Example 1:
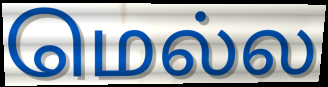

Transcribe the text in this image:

மெல்ல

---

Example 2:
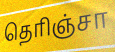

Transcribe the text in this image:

தெரிஞ்சா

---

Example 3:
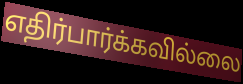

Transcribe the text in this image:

எதிர்பார்க்கவில்லை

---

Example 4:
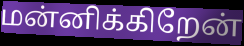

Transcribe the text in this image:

மன்னிக்கிறேன்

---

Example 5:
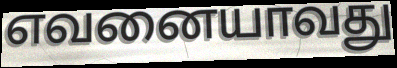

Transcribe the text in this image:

எவனையாவது